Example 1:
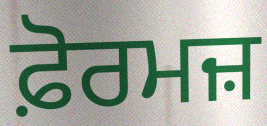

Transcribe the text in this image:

ਫ਼ੋਰਮਜ਼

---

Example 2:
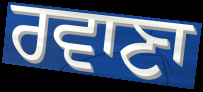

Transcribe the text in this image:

ਰਵਾਣਾ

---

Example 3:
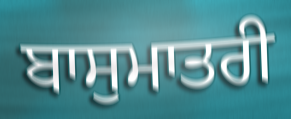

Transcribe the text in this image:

ਬਾਸੁਮਾਤਰੀ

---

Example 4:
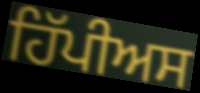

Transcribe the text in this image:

ਹਿੱਪੀਅਸ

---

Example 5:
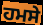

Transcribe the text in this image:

ਹਮਸੇ